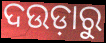
ଦଉଡ଼ାରୁ